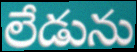
లేడును